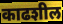
काढशील